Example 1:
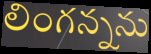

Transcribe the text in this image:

లింగన్నను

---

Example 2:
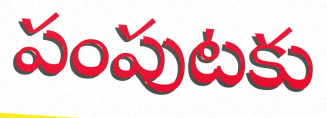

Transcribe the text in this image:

పంపుటకు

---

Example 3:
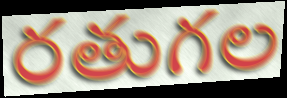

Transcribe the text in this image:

రతుగల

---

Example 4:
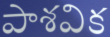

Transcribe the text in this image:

పాశవిక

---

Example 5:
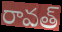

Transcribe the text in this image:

రావత్